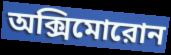
অক্সিমোরোন